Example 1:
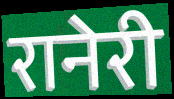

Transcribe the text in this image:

रानेरी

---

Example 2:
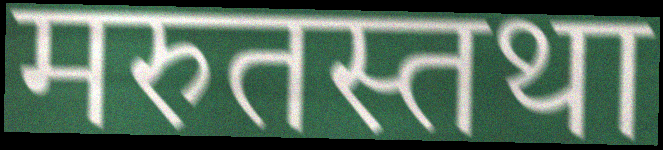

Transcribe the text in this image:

मरुतस्तथा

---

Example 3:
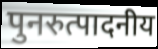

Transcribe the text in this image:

पुनरुत्पादनीय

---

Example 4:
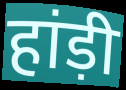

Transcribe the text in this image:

हांड़ी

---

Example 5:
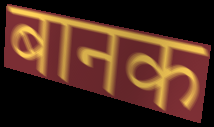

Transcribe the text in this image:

बानक